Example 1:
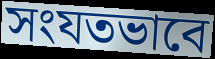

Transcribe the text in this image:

সংযতভাবে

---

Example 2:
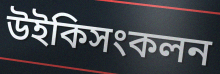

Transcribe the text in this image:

উইকিসংকলন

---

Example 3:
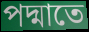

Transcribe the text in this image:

পদ্মাতে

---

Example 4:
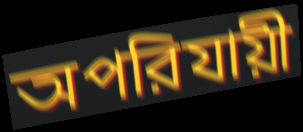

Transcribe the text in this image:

অপরিযায়ী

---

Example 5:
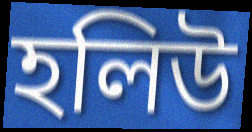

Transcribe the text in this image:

হলিউ